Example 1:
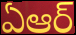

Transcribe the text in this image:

ఏఆర్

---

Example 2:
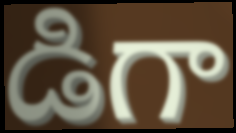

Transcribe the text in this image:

డిగా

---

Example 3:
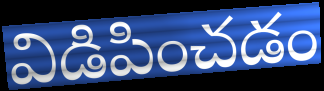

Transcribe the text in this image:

విడిపించడం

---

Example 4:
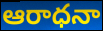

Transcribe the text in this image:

ఆరాధనా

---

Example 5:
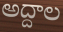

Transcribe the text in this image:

అద్దాల